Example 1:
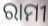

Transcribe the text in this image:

ରାମୀ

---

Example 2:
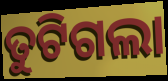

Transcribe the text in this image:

ତୁଟିଗଲା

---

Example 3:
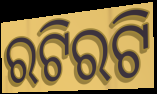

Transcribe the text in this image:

ରଟିରଟି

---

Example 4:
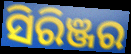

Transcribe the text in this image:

ସିରିଞ୍ଜର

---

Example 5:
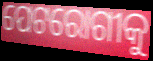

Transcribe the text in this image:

ପେଟରୋଗୀକୁ